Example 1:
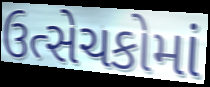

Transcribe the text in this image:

ઉત્સેચકોમાં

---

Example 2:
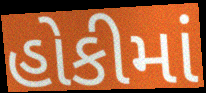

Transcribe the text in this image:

હોકીમાં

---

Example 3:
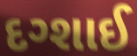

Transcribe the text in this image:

દગ્શાઈ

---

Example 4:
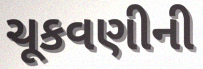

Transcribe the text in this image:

ચૂકવણીની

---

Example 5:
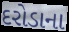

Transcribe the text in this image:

દરોડાના